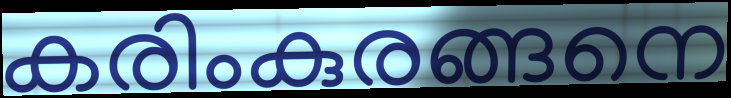
കരിംകുരങ്ങനെ